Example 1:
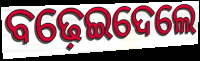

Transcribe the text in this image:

ବଢ଼େଇଦେଲେ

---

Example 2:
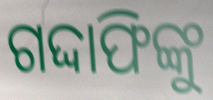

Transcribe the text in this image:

ଗଦ୍ଦାଫିଙ୍କୁ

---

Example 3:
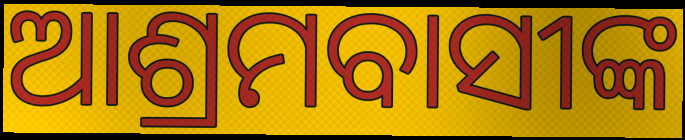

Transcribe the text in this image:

ଆଶ୍ରମବାସୀଙ୍କ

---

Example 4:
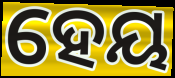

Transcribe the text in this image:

ହେୟ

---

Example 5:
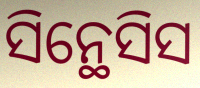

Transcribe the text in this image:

ସିନ୍ଥେସିସ